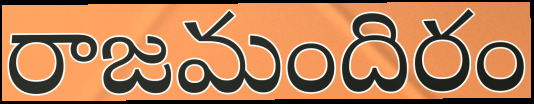
రాజమందిరం